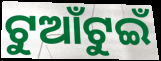
ଟୁଆଁଟୁଇଁ